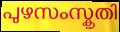
പുഴസംസ്കൃതി